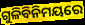
ଗୁଳିବିନିମୟରେ